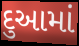
દુઆમાં